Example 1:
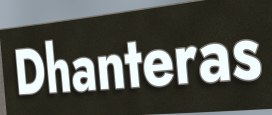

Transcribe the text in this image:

Dhanteras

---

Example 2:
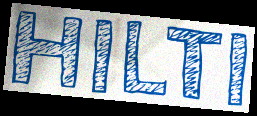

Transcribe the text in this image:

HILTI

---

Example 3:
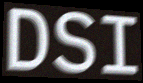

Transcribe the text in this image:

DSI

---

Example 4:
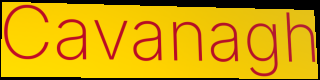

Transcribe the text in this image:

Cavanagh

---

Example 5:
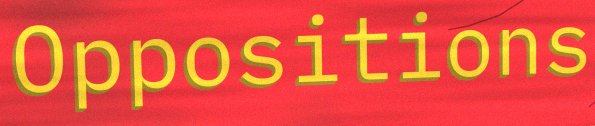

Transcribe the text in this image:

Oppositions